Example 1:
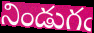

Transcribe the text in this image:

నిండుగఁ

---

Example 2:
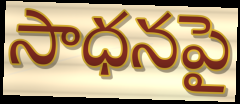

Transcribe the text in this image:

సాధనపై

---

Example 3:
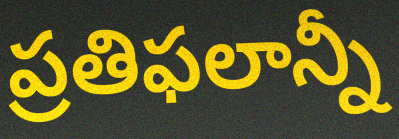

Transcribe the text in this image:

ప్రతిఫలాన్నీ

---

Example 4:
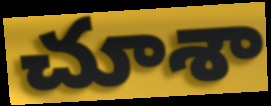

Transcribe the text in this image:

చూశా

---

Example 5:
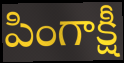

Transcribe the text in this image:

పింగాక్షీ